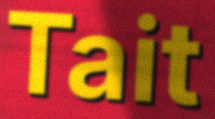
Tait